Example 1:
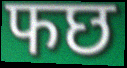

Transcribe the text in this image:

फछ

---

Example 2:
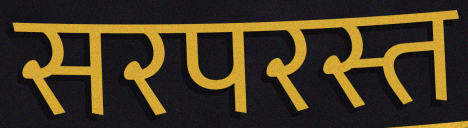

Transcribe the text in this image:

सरपरस्त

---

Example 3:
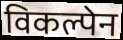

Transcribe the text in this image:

विकल्पेन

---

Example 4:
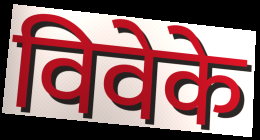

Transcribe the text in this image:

विवेके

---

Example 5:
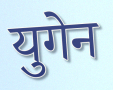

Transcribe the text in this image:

युगेन